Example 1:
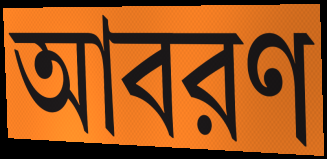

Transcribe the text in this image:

আবরণ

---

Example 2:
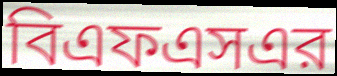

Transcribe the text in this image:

বিএফএসএর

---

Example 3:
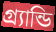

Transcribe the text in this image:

গ্র্যান্ডি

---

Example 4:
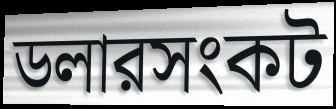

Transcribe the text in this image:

ডলারসংকট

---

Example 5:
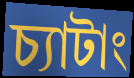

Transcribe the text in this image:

চ্যাটাং